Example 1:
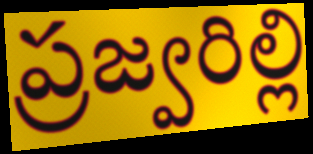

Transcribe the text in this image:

ప్రజ్వరిల్లి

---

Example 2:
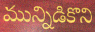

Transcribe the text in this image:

మున్నిడికొని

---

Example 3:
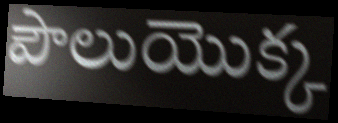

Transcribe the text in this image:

పౌలుయొక్క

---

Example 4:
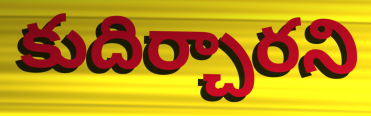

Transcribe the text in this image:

కుదిర్చారని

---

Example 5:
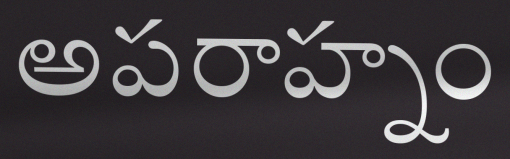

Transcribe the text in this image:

అపరాహ్నం